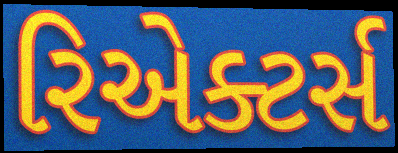
રિએક્ટર્સ